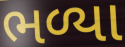
ભળ્યા